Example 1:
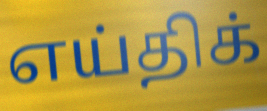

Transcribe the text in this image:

எய்திக்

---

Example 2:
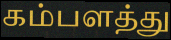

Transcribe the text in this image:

கம்பளத்து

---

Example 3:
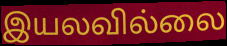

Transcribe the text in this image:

இயலவில்லை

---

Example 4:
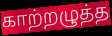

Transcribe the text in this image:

காற்றழுத்த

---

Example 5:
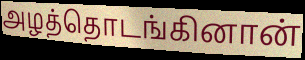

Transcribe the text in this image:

அழத்தொடங்கினான்